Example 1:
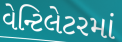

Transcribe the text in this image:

વેન્ટિલેટરમાં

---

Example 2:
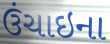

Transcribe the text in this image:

ઉંચાઇના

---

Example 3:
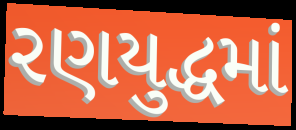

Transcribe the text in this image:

રણયુદ્ધમાં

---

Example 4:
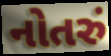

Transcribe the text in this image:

નોતરું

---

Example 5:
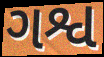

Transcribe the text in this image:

ગશ્વ